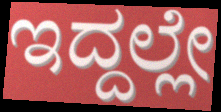
ಇದ್ದಲ್ಲೇ